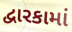
દ્વારકામાં